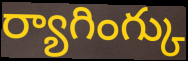
ర్యాగింగ్కు